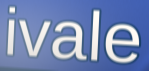
ivale